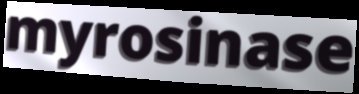
myrosinase